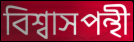
বিশ্বাসপন্থী